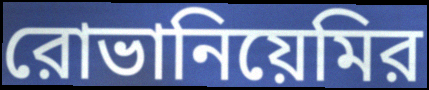
রোভানিয়েমির